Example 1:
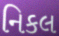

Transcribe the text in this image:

નિકલ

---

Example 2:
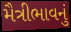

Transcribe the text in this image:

મૈત્રીભાવનું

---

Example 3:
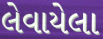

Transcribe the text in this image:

લેવાયેલા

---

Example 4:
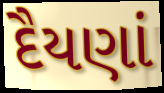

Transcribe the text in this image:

દૈયણાં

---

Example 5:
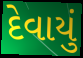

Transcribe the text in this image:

દેવાયું